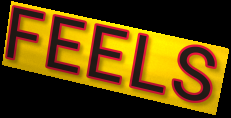
FEELS